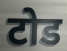
टोड